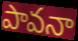
పావనా